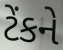
ટેંકને